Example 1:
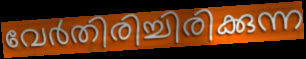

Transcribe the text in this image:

വേർതിരിച്ചിരിക്കുന്ന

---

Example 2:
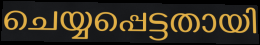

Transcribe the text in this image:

ചെയ്യപ്പെട്ടതായി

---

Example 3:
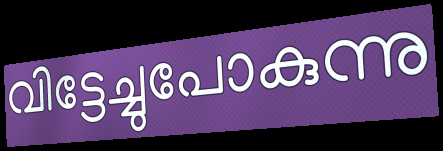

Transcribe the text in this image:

വിട്ടേച്ചുപോകുന്നു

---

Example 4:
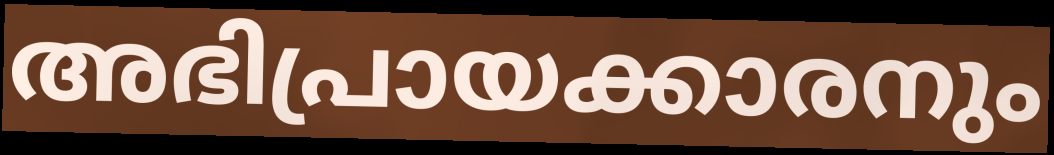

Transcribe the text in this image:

അഭിപ്രായക്കാരനും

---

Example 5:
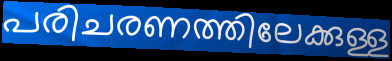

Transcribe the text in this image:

പരിചരണത്തിലേക്കുള്ള